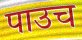
पाउच